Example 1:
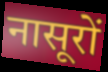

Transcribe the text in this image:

नासूरों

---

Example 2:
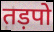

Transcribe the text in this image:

तड़पो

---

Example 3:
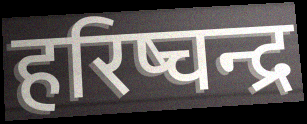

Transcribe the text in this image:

हरिष्चन्द्र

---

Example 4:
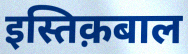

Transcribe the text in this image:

इस्तिक़बाल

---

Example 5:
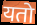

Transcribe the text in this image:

यतो